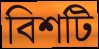
বিশটি